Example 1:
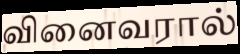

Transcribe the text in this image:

வினைவரால்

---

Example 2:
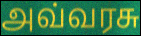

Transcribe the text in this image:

அவ்வரசு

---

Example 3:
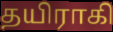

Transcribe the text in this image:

தயிராகி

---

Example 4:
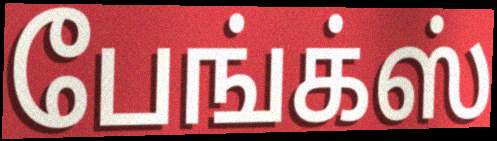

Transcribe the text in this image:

பேங்க்ஸ்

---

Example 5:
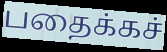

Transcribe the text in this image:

பதைக்கச்